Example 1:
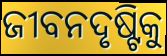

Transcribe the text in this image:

ଜୀବନଦୃଷ୍ଟିକୁ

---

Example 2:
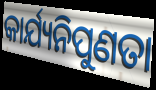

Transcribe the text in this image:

କାର୍ଯ୍ୟନିପୁଣତା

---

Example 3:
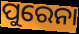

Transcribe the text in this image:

ପୁରେନା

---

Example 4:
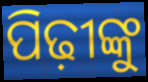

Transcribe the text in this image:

ପିଢ଼ୀଙ୍କୁ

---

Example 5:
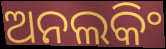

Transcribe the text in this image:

ଅନଲକିଂ